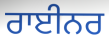
ਰਾਈਨਰ